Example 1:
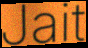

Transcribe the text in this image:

Jait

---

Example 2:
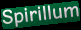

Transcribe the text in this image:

Spirillum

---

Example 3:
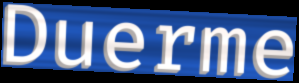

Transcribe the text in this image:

Duerme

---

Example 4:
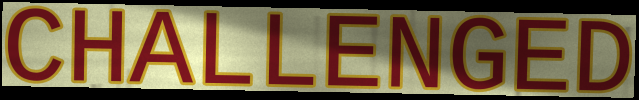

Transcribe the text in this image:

CHALLENGED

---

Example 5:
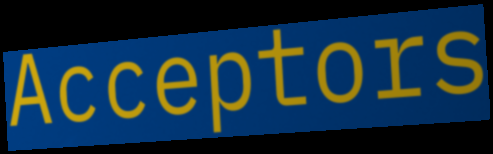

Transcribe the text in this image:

Acceptors